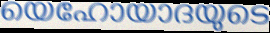
യെഹോയാദയുടെ